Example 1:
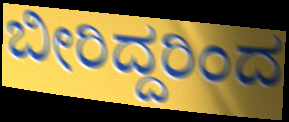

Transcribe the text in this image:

ಬೀರಿದ್ದರಿಂದ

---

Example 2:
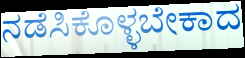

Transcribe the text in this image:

ನಡೆಸಿಕೊಳ್ಳಬೇಕಾದ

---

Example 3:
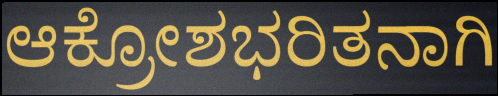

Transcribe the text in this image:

ಆಕ್ರೋಶಭರಿತನಾಗಿ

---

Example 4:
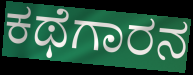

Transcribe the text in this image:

ಕಥೆಗಾರನ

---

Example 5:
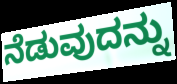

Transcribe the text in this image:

ನೆಡುವುದನ್ನು